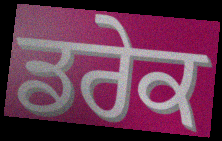
ਡਰੇਕ